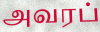
அவரப்